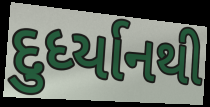
દુર્ધ્યાનથી